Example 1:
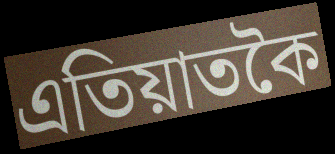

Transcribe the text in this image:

এতিয়াতকৈ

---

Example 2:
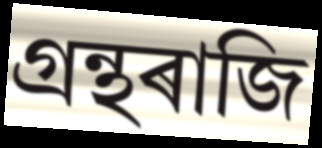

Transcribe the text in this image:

গ্ৰন্থৰাজি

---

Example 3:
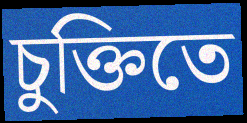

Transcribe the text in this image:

চুক্তিতে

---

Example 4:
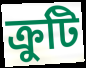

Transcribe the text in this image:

ক্ৰুটি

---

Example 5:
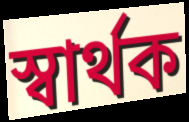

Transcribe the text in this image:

স্বাৰ্থক